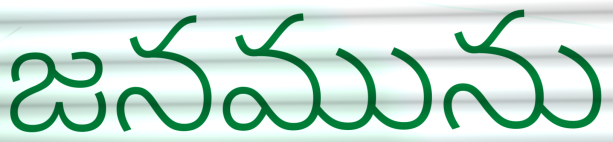
జనమును